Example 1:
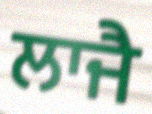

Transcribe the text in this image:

ਲਾਜੈ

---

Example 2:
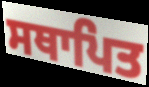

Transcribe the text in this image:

ਸਥਾਪਿਤ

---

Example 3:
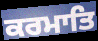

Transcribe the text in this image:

ਕਰਮਾਤਿ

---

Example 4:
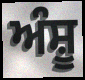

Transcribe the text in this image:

ਅੰਸ਼ੂ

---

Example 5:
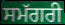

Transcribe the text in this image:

ਸਮੱਗਰੀ